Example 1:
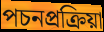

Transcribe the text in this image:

পচনপ্রক্রিয়া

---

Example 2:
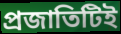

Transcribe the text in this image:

প্রজাতিটিই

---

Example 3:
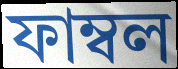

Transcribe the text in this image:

ফাম্বল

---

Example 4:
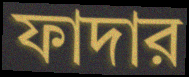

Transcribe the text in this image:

ফাদার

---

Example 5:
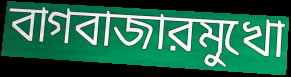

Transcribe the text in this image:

বাগবাজারমুখো